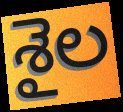
శైల